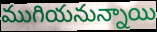
ముగియనున్నాయి